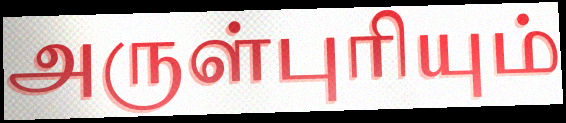
அருள்புரியும்